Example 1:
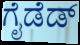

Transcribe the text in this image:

ಗೈಡೆಡ್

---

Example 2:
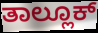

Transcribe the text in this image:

ತಾಲ್ಲೂಕ್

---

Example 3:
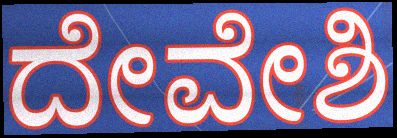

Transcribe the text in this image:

ದೇವೇಶಿ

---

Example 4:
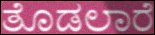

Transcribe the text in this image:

ತೊಡಲಾರೆ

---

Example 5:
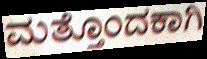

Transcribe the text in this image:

ಮತ್ತೊಂದಕಾಗಿ